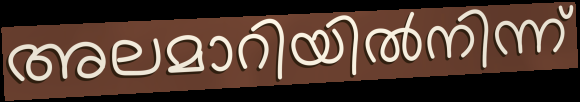
അലമാറിയിൽനിന്ന്